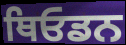
ਥਿਓਡਨ